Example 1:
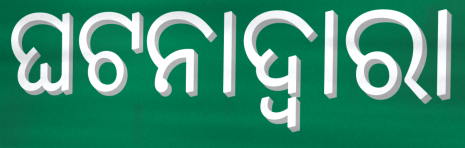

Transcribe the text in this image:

ଘଟନାଦ୍ୱାରା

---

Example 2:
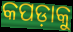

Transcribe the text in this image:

କପଡ଼ାକୁ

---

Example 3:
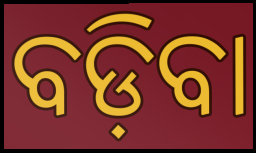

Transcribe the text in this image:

ବଡ଼ିବା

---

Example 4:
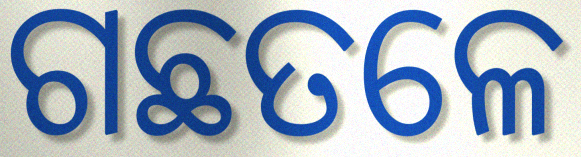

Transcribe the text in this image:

ଗଛତଳେ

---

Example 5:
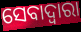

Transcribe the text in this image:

ସେବାଦ୍ବାରା